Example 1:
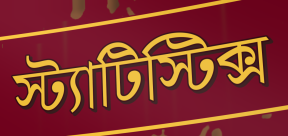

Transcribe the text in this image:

স্ট্যাটিস্টিক্স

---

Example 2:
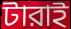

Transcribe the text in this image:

টারাই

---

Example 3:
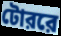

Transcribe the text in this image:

টোররে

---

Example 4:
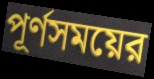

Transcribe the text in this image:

পূর্ণসময়ের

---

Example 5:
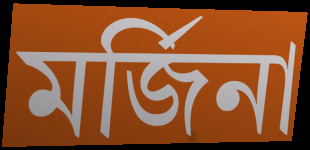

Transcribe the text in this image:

মর্জিনা